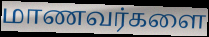
மாணவர்களை